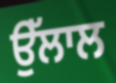
ਉੱਲਾਲ